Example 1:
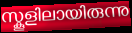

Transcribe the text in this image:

സ്കൂളിലായിരുന്നു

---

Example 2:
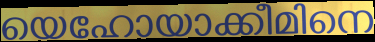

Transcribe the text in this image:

യെഹോയാക്കീമിനെ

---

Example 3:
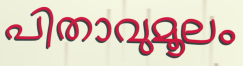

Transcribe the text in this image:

പിതാവുമൂലം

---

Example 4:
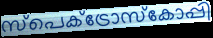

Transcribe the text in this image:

സ്പെക്ട്രോസ്കോപ്പി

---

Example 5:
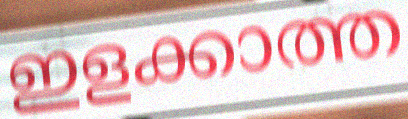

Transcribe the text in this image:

ഇളക്കാത്ത